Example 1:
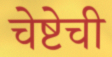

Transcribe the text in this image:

चेष्टेची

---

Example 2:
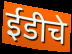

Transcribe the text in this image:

ईडीचे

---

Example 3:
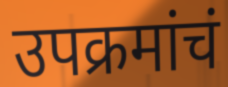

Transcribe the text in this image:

उपक्रमांचं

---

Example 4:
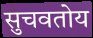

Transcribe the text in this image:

सुचवतोय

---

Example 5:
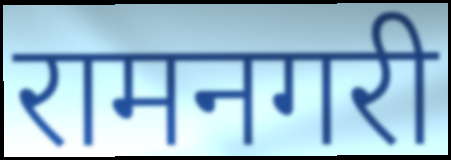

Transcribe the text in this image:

रामनगरी